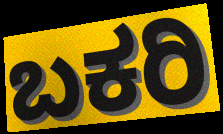
ಬಕರಿ